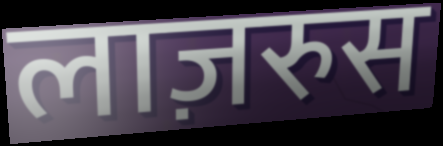
लाज़रुस